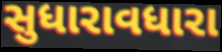
સુધારાવધારા